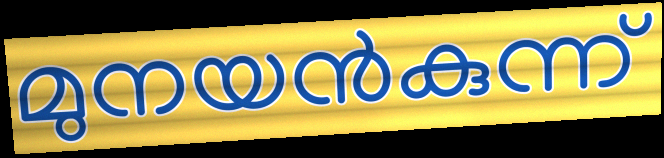
മുനയൻകുന്ന്